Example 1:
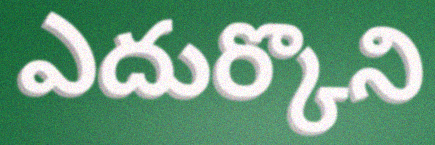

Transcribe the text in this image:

ఎదుర్కొని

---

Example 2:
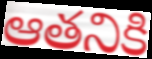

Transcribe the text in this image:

ఆతనికి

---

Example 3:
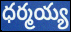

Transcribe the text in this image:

ధర్మయ్య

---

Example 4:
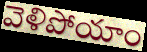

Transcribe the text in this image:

వెళిపోయాం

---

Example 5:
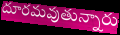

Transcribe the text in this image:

దూరమవుతున్నారు